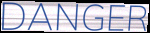
DANGER